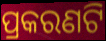
ପ୍ରକରଣଟି